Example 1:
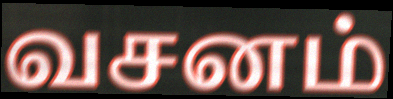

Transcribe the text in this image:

வசனம்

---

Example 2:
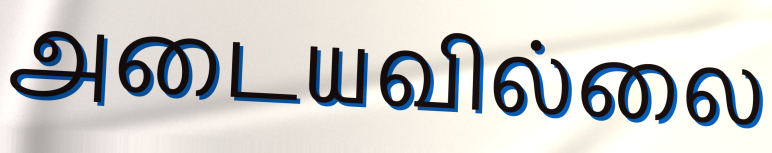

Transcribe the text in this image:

அடையவில்லை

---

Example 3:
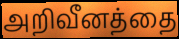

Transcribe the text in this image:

அறிவீனத்தை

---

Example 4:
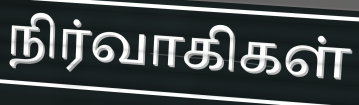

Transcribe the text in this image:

நிர்வாகிகள்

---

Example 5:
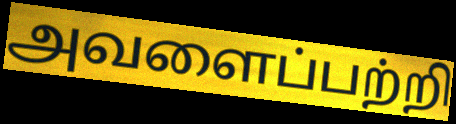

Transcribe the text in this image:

அவளைப்பற்றி